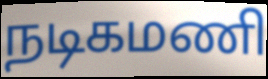
நடிகமணி